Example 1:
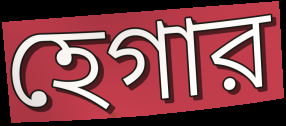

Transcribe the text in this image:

হেগার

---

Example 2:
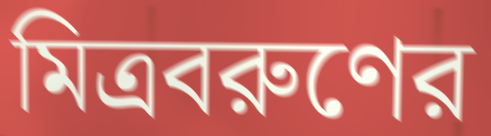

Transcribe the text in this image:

মিত্রবরুণের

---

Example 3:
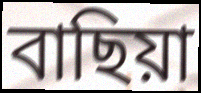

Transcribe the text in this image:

বাছিয়া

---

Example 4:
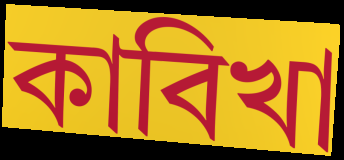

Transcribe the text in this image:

কাবিখা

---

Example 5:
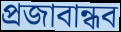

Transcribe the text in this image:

প্রজাবান্ধব